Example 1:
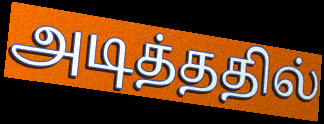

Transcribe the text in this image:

அடித்ததில்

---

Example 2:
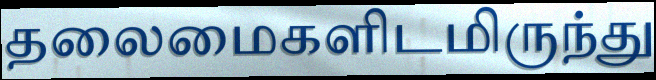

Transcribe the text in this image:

தலைமைகளிடமிருந்து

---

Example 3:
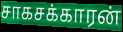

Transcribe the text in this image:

சாகசக்காரன்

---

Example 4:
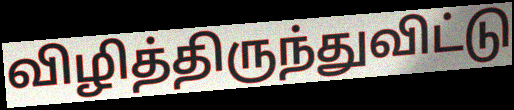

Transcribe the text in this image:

விழித்திருந்துவிட்டு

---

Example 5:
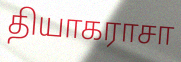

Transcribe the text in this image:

தியாகராசா